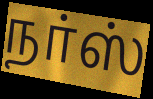
நர்ஸ்